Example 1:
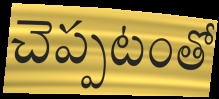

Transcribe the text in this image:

చెప్పటంతో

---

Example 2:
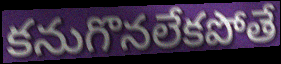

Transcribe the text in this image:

కనుగొనలేకపోతే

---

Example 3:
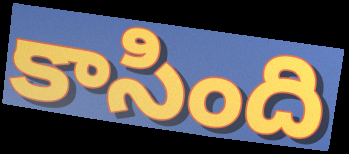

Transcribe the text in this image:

కాసింది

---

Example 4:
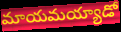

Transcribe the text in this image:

మాయమయ్యాడో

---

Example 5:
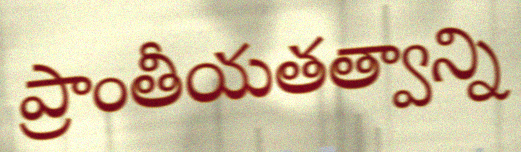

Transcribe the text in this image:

ప్రాంతీయతత్వాన్ని